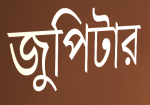
জুপিটার